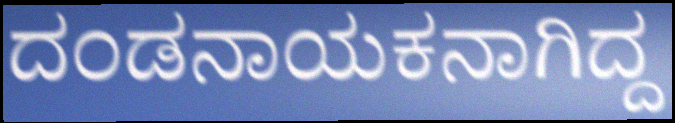
ದಂಡನಾಯಕನಾಗಿದ್ದ